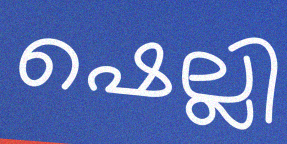
ഷെല്ലി